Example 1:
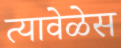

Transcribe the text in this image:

त्यावेळेस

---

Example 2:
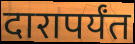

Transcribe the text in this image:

दारापर्यंत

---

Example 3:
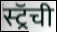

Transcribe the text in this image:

स्ट्रॅची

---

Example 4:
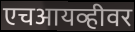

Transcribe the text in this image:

एचआयव्हीवर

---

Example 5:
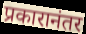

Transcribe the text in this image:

प्रकारानंतर